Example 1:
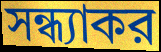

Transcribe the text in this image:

সন্ধ্যাকর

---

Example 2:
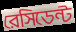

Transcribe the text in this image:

রেসিডেন্ট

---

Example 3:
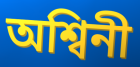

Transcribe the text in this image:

অশ্বিনী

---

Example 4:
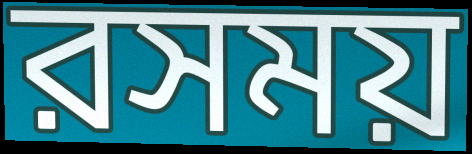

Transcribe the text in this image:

রসময়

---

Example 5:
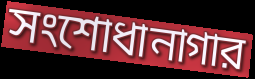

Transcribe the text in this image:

সংশোধানাগার